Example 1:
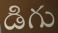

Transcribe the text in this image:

డిగు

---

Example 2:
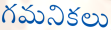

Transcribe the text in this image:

గమనికలు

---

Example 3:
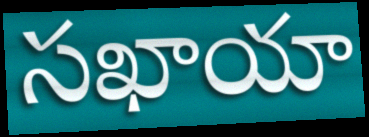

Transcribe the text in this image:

సఖాయా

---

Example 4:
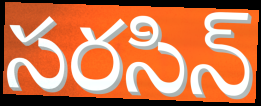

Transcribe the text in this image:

సరసిన్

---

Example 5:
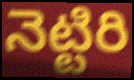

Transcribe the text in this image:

నెట్టిరి